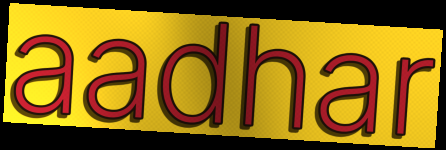
aadhar